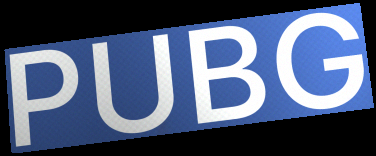
PUBG